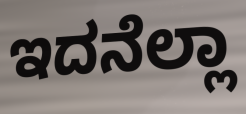
ಇದನೆಲ್ಲಾ